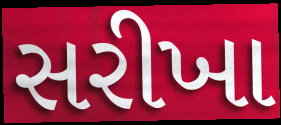
સરીખા